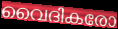
വൈദികരോ